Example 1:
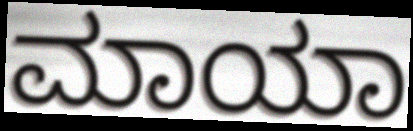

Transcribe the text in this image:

ಮಾಯಾ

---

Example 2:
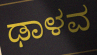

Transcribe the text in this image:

ಢಾಳವ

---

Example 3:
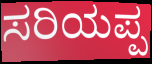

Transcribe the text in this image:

ಸರಿಯಪ್ಪ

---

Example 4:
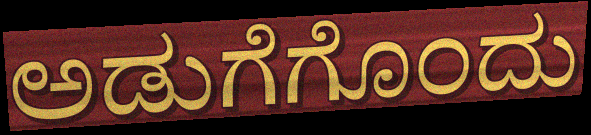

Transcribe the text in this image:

ಅಡುಗೆಗೊಂದು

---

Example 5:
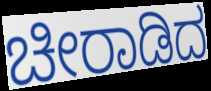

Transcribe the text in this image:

ಚೀರಾಡಿದ